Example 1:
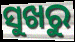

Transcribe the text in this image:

ସୁଖରୁ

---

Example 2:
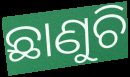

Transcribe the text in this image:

ଛାଣୁଚି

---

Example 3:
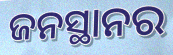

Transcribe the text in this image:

ଜନସ୍ଥାନର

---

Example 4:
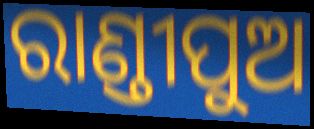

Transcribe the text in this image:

ରାଣ୍ଡୀପୁଅ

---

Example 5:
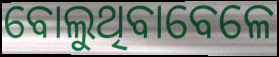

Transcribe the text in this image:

ବୋଲୁଥିବାବେଳେ